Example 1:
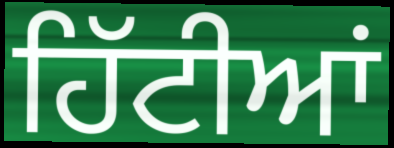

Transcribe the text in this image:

ਹਿੱਟੀਆਂ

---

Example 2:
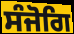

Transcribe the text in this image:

ਸੰਜੋਗਿ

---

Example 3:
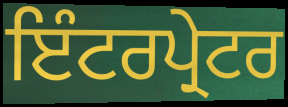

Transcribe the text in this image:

ਇੰਟਰਪ੍ਰੇਟਰ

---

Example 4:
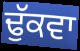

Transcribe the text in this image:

ਢੁੱਕਵਾ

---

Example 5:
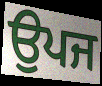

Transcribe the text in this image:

ਉਪਜ